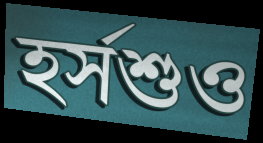
হর্সশুও